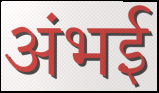
अंभई